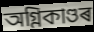
অগ্নিকাণ্ডৰ